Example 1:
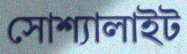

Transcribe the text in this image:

সোশ্যালাইট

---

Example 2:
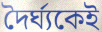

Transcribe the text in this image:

দৈর্ঘ্যকেই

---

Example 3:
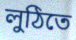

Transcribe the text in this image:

লুঠিতে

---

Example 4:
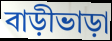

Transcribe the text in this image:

বাড়ীভাড়া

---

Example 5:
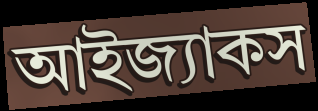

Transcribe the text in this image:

আইজ্যাকস